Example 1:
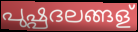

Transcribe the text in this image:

പുഷ്പദലങ്ങള്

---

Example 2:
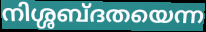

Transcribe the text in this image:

നിശ്ശബ്ദതയെന്ന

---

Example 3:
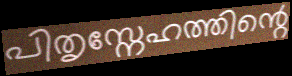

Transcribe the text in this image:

പിതൃസ്നേഹത്തിന്റെ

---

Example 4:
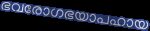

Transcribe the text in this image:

ഭവരോഗഭയാപഹായ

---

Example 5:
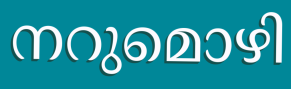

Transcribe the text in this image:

നറുമൊഴി